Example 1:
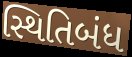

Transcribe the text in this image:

સ્થિતિબંધ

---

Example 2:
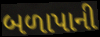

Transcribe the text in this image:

બળાપાની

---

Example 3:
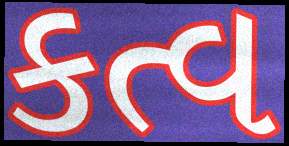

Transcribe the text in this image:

કત્વ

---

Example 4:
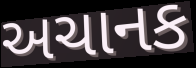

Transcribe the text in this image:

અચાનક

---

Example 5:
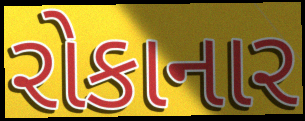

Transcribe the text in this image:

રોકાનાર